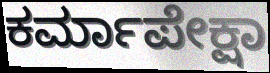
ಕರ್ಮಾಪೇಕ್ಷಾ